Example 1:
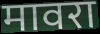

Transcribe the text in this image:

मावरा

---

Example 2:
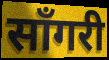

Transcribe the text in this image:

साँगरी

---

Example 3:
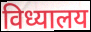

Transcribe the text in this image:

विध्यालय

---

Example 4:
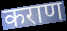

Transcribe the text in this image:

कराण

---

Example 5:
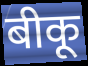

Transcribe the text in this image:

बीकू